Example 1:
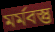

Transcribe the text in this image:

মৰ্মবস্তু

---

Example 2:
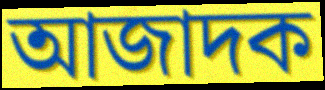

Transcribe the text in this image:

আজাদক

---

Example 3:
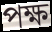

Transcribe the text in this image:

পক্ষ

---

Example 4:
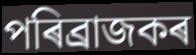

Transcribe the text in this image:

পৰিব্ৰাজকৰ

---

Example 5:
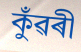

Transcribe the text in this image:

কুঁৱৰী